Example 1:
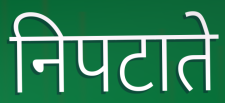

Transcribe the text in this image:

निपटाते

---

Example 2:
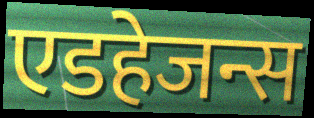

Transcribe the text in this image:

एडहेजन्स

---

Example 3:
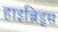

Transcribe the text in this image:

हाइब्रिड्स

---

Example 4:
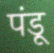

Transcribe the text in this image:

पंडू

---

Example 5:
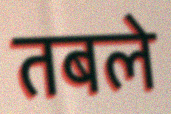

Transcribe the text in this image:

तबले